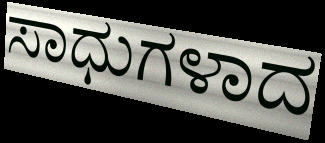
ಸಾಧುಗಳಾದ